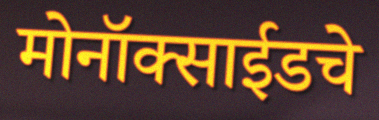
मोनॉक्साईडचे